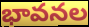
భావనల